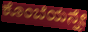
ಕೊಂಬೆಯನ್ನೇ